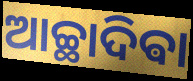
ଆଚ୍ଛାଦିଵା